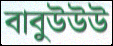
বাবুউউউ